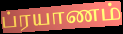
ப்ரயாணம்